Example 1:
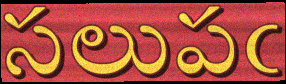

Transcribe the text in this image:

సలుపఁ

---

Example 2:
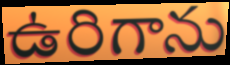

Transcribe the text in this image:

ఉరిగాను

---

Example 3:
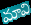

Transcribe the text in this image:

మావి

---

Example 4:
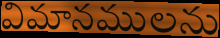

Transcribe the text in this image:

విమానములను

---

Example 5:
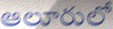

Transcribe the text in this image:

ఆలూరులో